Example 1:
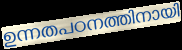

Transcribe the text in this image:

ഉന്നതപഠനത്തിനായി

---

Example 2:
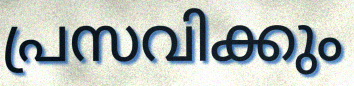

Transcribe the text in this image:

പ്രസവിക്കും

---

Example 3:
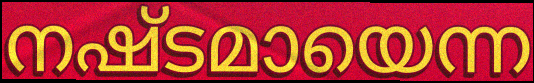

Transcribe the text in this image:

നഷ്ടമായെന്ന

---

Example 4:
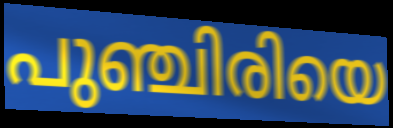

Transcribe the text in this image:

പുഞ്ചിരിയെ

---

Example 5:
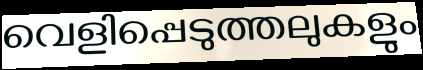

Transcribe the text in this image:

വെളിപ്പെടുത്തലുകളും